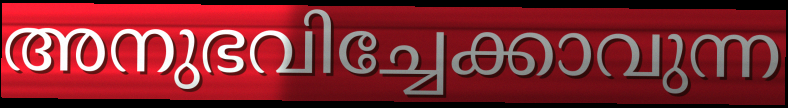
അനുഭവിച്ചേക്കാവുന്ന